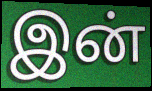
இன்